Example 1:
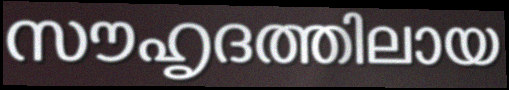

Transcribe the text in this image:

സൗഹൃദത്തിലായ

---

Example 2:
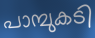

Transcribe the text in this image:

പാമ്പുകടി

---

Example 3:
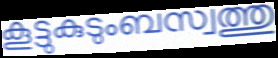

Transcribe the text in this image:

കൂട്ടുകുടുംബസ്വത്തു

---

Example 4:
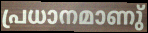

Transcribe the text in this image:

പ്രധാനമാണു്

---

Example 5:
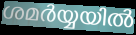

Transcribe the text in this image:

ശമർയ്യയിൽ